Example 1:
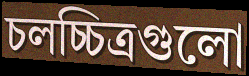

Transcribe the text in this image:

চলচ্চিত্রগুলো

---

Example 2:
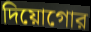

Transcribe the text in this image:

দিয়োগোর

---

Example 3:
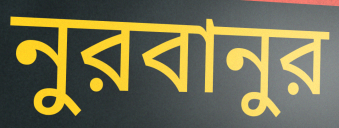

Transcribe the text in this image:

নুরবানুর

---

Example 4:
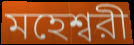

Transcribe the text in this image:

মহেশ্বরী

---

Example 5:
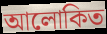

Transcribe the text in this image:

আলোকিত